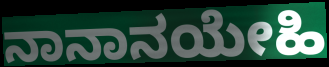
ನಾನಾನಯೇಹಿ